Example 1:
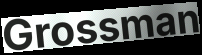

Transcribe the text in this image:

Grossman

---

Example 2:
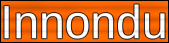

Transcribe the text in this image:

Innondu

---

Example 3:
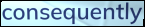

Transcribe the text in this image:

consequently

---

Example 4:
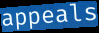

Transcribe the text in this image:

appeals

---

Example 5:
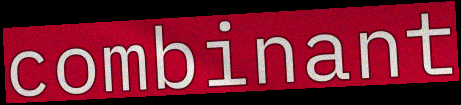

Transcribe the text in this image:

combinant